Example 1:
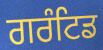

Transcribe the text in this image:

ਗਰੰਟਿਡ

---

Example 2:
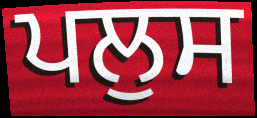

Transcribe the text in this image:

ਪਲੁਸ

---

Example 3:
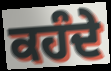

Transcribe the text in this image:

ਕਹੰਦੇ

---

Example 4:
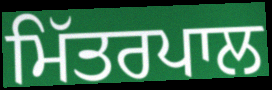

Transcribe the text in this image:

ਮਿੱਤਰਪਾਲ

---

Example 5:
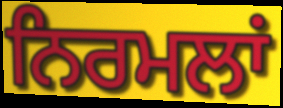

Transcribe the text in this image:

ਨਿਰਮਲਾਂ